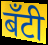
बँटी